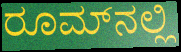
ರೂಮ್‌ನಲ್ಲಿ